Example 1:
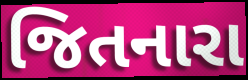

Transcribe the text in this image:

જિતનારા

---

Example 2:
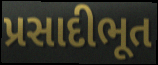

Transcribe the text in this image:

પ્રસાદીભૂત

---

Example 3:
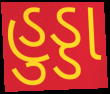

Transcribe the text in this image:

હુડ્ડા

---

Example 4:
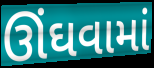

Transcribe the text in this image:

ઊંઘવામાં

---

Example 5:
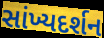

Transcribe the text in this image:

સાંખ્યદર્શન